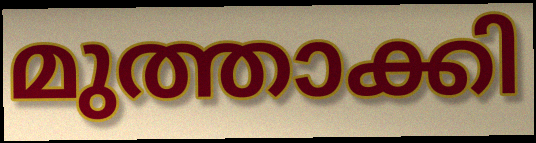
മുത്താക്കി